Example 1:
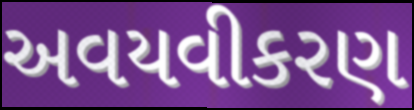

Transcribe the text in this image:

અવયવીકરણ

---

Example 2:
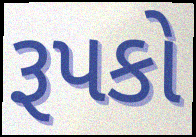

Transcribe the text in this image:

રૂપકો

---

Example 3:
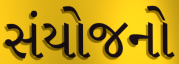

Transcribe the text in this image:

સંયોજનો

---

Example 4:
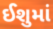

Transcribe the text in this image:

ઈશુમાં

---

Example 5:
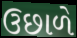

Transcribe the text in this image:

ઉછાળે